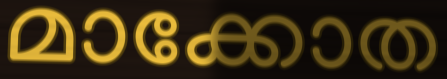
മാക്കോത